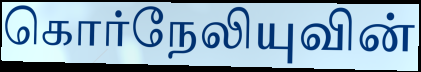
கொர்நேலியுவின்